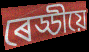
ৰেড্ডীয়ে